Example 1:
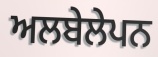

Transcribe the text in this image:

ਅਲਬੇਲੇਪਨ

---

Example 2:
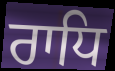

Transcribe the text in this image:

ਰਾਧਿ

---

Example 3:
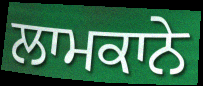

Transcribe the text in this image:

ਲਾਮਕਾਨੇ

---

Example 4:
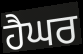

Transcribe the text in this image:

ਹੈਘਰ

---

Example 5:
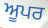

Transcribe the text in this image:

ਅੂਪਰ